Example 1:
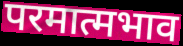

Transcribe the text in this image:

परमात्मभाव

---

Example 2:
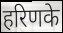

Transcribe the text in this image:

हरिणके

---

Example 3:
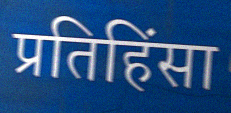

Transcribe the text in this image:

प्रतिहिंसा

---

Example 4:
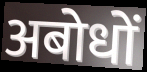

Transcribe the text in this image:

अबोधों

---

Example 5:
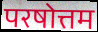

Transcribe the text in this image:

परषोत्तम